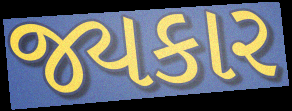
જ્યકાર